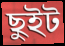
ছুইট